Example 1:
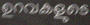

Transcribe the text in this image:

ഉറവകളുടെ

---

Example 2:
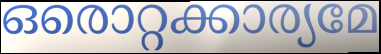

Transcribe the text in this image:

ഒരൊറ്റക്കാര്യമേ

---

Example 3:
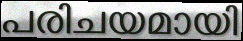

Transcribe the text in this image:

പരിചയമായി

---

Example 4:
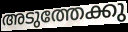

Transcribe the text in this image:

അടുത്തേക്കു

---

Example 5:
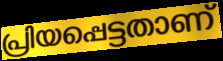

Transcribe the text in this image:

പ്രിയപ്പെട്ടതാണ്